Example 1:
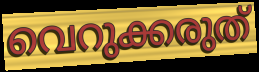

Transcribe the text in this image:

വെറുക്കരുത്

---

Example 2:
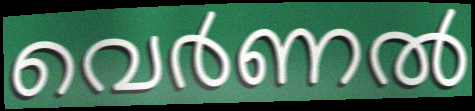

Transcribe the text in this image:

വെർണൽ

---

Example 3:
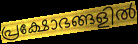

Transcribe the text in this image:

പ്രക്ഷോഭങ്ങളിൽ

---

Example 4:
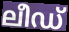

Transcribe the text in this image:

ലീഡ്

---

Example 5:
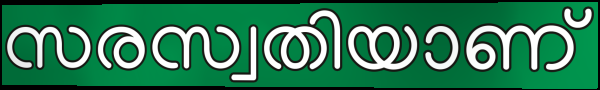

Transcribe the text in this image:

സരസ്വതിയാണ്